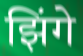
झिंगे